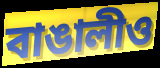
বাঙালীও